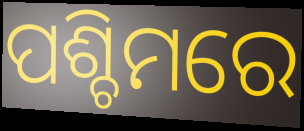
ପଶ୍ଚିମରେ